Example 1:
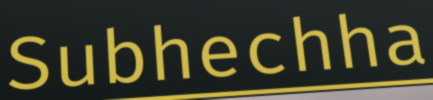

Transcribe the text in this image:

Subhechha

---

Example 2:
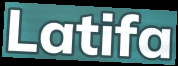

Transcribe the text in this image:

Latifa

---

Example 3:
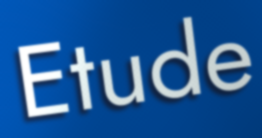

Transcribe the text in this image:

Etude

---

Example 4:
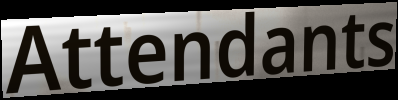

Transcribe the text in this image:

Attendants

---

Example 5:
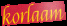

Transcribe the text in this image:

korlaam